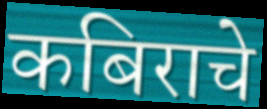
कबिराचे